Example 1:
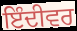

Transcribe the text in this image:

ਇੰਦੀਵਰ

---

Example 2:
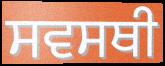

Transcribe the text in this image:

ਸਵਸਥੀ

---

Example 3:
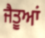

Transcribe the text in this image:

ਜੈਤੂਆਂ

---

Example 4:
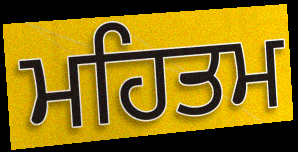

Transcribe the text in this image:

ਮਹਿਤਮ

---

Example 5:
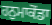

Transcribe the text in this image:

ਹਨੁਮਾਕੋਂਡਾ